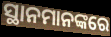
ସ୍ଥାନମାନଙ୍କରେ